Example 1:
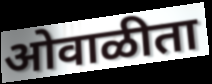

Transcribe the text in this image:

ओवाळीता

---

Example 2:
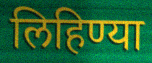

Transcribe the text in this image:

लिहिण्या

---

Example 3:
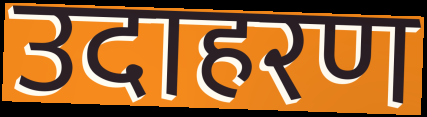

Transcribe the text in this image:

उदाहरण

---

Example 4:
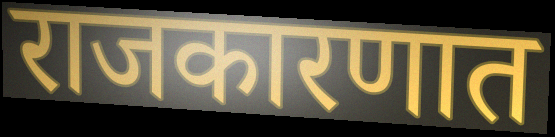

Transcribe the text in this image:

राजकारणात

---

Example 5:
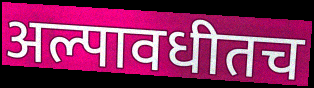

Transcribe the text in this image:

अल्पावधीतच